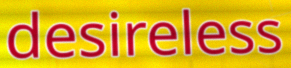
desireless